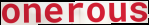
onerous